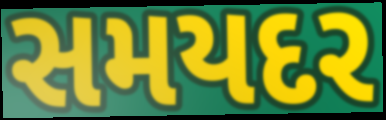
સમયદર